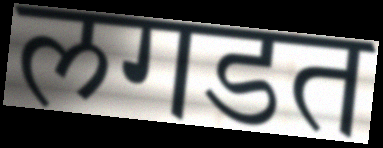
लगडत